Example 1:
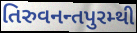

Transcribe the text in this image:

તિરુવનન્તપુરમ્થી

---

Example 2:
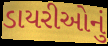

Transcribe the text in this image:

ડાયરીઓનું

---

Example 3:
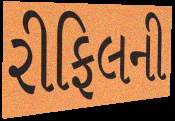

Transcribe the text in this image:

રીફિલની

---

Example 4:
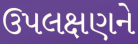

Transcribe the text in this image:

ઉપલક્ષણને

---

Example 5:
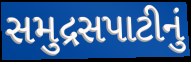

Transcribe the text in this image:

સમુદ્રસપાટીનું